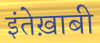
इंतेख़ाबी